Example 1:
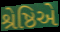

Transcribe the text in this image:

શ્રેષ્ઠિએ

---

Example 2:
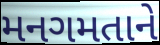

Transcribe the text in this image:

મનગમતાને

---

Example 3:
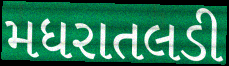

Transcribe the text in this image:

મધરાતલડી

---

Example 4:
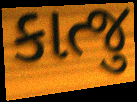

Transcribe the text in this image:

કાત્જુ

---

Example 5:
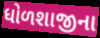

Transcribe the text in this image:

ધોળશાજીના